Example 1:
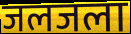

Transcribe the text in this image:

जलजला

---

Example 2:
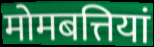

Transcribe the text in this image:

मोमबत्तियां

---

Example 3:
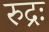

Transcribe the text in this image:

रुद्रः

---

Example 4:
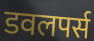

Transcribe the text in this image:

डवलपर्स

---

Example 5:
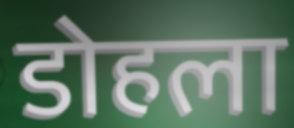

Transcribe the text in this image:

डोहला